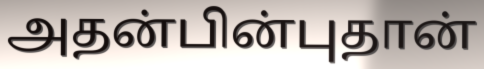
அதன்பின்புதான்